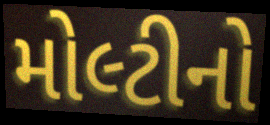
મોલ્ટીનો